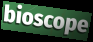
bioscope